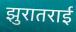
झुरातराई